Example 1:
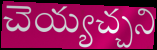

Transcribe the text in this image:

చెయ్యచ్చని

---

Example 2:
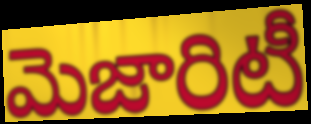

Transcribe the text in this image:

మెజారిటీ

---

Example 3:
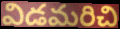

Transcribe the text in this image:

విడమరిచి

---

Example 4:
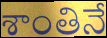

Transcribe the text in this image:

శాంతినే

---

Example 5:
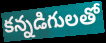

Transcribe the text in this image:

కన్నడిగులతో